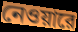
নেওয়ারে